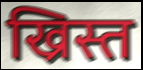
ख्रिस्त